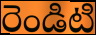
రెండిటి